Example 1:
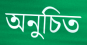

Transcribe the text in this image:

অনুচিত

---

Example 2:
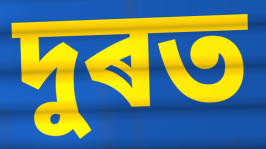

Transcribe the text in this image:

দুৰত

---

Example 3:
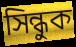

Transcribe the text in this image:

সিন্ধুক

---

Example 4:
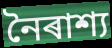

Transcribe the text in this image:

নৈৰাশ্য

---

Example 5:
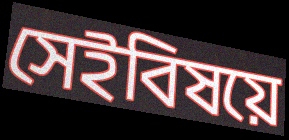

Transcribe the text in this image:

সেইবিষয়ে